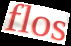
flos